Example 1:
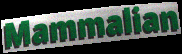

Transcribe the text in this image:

Mammalian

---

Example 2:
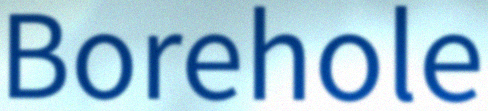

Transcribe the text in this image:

Borehole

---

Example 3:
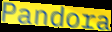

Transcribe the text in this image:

Pandora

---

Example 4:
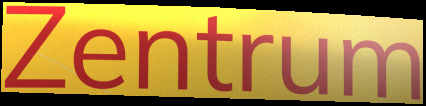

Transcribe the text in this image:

Zentrum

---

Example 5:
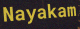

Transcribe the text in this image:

Nayakam